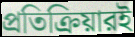
প্রতিক্রিয়ারই